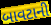
બાવટાની